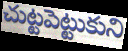
చుట్టపెట్టుకుని